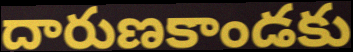
దారుణకాండకు